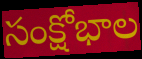
సంక్షోభాల